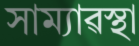
সাম্যাৱস্থা